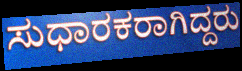
ಸುಧಾರಕರಾಗಿದ್ದರು